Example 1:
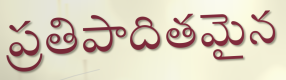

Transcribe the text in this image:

ప్రతిపాదితమైన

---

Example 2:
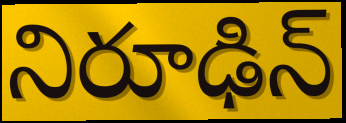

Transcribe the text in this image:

నిరూఢిన్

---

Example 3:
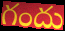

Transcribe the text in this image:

గందు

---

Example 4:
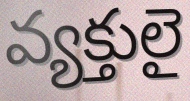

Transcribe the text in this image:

వ్యక్తులై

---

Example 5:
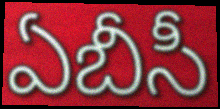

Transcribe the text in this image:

ఏబీసీ